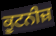
ਕੂਟਨੀਜ਼